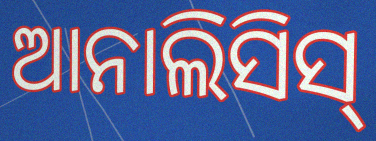
ଆନାଲିସିସ୍